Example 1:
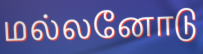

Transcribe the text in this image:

மல்லனோடு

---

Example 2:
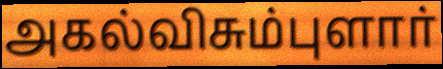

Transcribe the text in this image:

அகல்விசும்புளார்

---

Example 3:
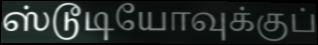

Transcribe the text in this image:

ஸ்டூடியோவுக்குப்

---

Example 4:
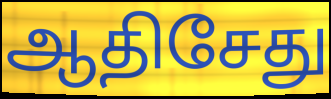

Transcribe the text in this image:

ஆதிசேது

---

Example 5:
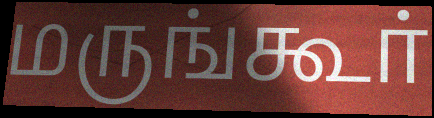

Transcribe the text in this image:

மருங்கூர்